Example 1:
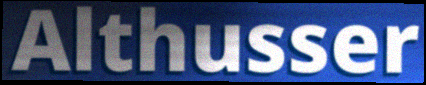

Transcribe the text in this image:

Althusser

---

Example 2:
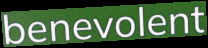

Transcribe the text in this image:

benevolent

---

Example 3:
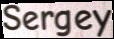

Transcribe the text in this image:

Sergey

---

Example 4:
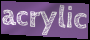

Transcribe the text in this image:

acrylic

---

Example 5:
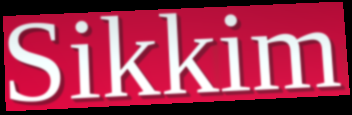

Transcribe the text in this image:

Sikkim